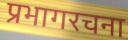
प्रभागरचना